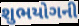
શુભયોગની